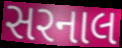
સરનાલ